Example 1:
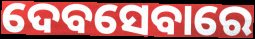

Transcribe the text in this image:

ଦେବସେବାରେ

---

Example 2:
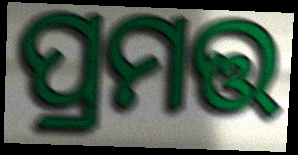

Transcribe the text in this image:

ପ୍ରମତ୍ତ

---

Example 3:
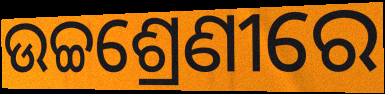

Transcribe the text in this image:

ଉଚ୍ଚଶ୍ରେଣୀରେ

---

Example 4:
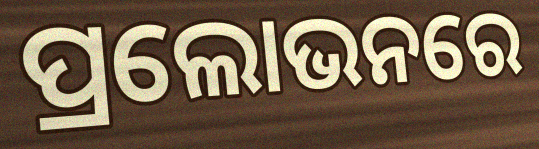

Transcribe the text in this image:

ପ୍ରଲୋଭନରେ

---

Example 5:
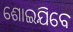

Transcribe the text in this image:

ଶୋଇଯିବେ